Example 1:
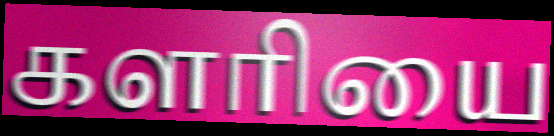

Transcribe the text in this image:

களரியை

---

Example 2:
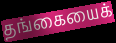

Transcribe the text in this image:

தங்கையைக்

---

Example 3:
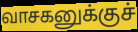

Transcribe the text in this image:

வாசகனுக்குச்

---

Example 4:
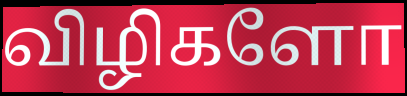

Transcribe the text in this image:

விழிகளோ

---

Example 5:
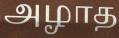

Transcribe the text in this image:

அழாத